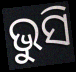
ଭୁସି